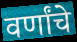
वर्णांचे